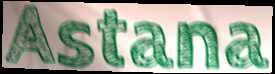
Astana